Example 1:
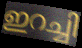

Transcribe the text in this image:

ഇറച്ചി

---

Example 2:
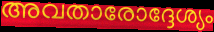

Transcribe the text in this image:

അവതാരോദ്ദേശ്യം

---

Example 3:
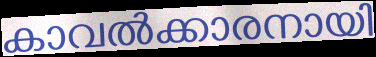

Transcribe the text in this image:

കാവൽക്കാരനായി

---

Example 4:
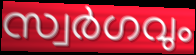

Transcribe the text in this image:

സ്വർഗവും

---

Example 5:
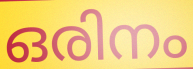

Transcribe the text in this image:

ഒരിനം